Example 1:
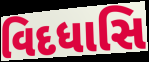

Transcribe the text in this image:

વિદધાસિ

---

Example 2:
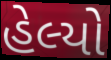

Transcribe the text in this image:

હેલ્યો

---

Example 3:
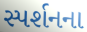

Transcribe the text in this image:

સ્પર્શનના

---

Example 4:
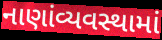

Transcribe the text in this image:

નાણાંવ્યવસ્થામાં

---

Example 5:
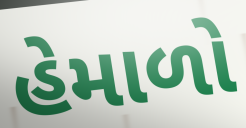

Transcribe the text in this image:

હેમાળો